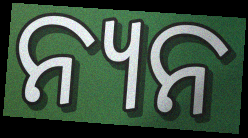
ନ୍ୟନ